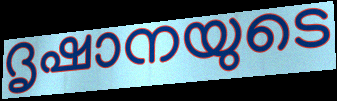
ദൃഷാനയുടെ